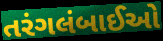
તરંગલંબાઈઓ